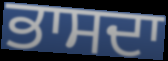
ਭਾਸਦਾ